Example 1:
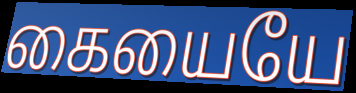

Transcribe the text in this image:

கையையே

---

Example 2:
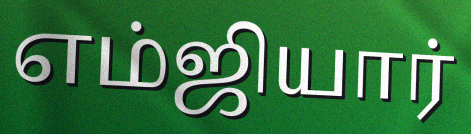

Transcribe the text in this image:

எம்ஜியார்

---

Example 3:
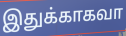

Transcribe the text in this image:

இதுக்காகவா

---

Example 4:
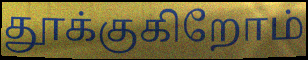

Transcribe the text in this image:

தூக்குகிறோம்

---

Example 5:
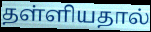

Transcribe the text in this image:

தள்ளியதால்